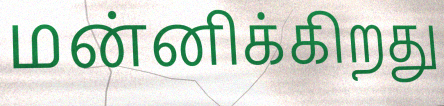
மன்னிக்கிறது